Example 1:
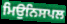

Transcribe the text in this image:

ਮਿਉਨਿਸਪਲ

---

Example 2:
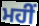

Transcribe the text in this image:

ਮਹੀਂ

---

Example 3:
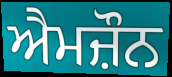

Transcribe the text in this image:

ਐਮਜ਼ੌਨ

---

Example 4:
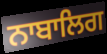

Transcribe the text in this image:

ਨਾਬਾਲਿਗ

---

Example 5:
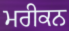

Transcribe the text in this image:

ਮਰੀਕਨ